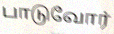
பாடுவோர்